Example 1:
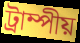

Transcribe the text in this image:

ট্রাম্পীয়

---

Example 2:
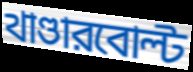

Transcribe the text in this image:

থাণ্ডারবোল্ট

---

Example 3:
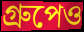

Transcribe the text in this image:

গ্রুপেও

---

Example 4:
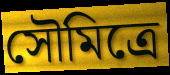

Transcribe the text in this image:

সৌমিত্রে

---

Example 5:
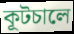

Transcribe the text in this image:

কূটচালে